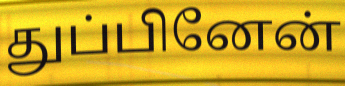
துப்பினேன்